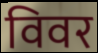
विवर